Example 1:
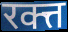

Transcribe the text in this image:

रक्त्त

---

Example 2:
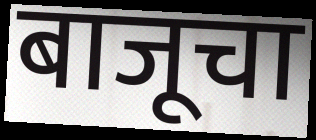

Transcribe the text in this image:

बाजूचा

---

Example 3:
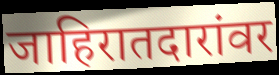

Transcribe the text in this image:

जाहिरातदारांवर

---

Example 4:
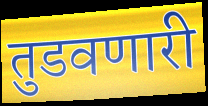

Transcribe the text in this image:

तुडवणारी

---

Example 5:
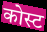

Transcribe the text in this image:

कोस्ट